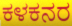
ಕಳಕನರ